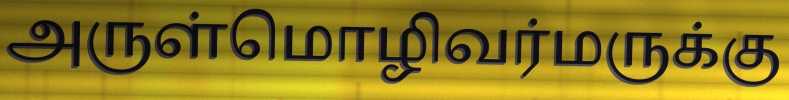
அருள்மொழிவர்மருக்கு